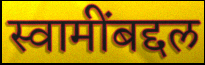
स्वामींबद्दल